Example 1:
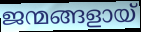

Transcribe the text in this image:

ജന്മങ്ങളായ്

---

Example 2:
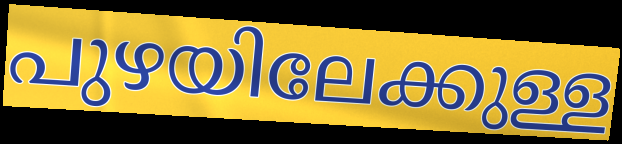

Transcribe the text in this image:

പുഴയിലേക്കുള്ള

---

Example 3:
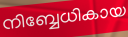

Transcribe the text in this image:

നിബ്ബേധികായ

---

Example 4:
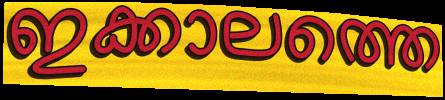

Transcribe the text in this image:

ഇക്കാലത്തെ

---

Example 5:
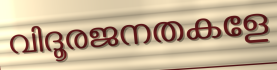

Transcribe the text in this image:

വിദൂരജനതകളേ